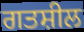
ਗਤਸ਼ੀਲ